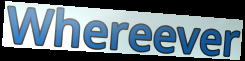
Whereever